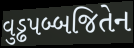
વુડ્ઢપબ્બજિતેન